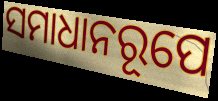
ସମାଧାନରୂପେ